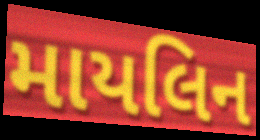
માયલિન